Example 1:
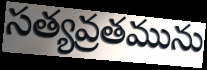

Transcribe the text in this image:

సత్యవ్రతమును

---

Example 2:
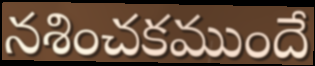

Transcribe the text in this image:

నశించకముందే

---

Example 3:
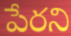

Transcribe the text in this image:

పేరని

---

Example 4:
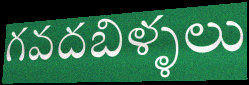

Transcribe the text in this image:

గవదబిళ్ళలు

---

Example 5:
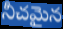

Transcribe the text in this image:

నీచమైన